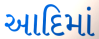
આદિમાં